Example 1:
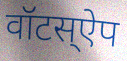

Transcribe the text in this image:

वॉटस्ऐप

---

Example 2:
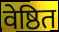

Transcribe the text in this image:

वेष्ठित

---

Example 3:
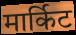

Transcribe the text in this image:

मार्किट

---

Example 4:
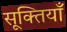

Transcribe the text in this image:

सूक्तियाँ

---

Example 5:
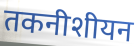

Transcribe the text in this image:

तकनीशीयन